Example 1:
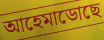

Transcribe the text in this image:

আহেমাডোছে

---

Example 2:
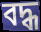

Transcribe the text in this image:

বদ্ধ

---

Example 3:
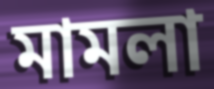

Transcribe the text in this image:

মামলা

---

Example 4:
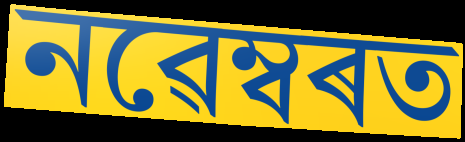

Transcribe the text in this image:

নৱেম্বৰত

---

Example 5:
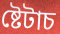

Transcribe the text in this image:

ষ্টেটাচ